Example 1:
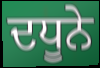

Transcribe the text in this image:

ਦਧੂਨੇ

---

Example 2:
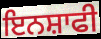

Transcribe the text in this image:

ਇਨਸ਼ਾਫੀ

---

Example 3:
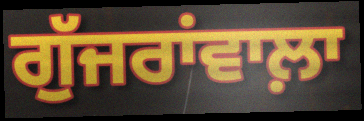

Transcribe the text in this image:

ਗੁੱਜਰਾਂਵਾਲ਼ਾ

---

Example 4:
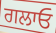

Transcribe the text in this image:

ਗਲਾਓ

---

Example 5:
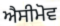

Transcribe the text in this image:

ਐਸੀਮੋਵ